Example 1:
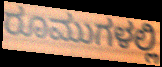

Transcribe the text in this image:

ರೂಮುಗಳಲ್ಲಿ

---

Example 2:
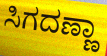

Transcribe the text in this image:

ಸಿಗದಣ್ಣಾ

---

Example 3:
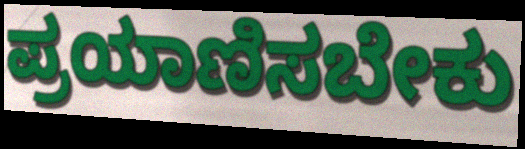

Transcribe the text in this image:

ಪ್ರಯಾಣಿಸಬೇಕು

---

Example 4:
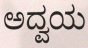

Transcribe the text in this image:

ಅದ್ವಯ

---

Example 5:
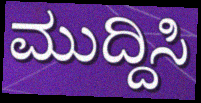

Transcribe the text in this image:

ಮುದ್ದಿಸಿ